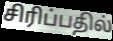
சிரிப்பதில்